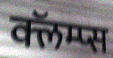
क्लॅम्प्स